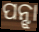
ପନ୍ଝା